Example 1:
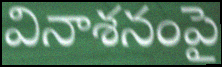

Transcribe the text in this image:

వినాశనంపై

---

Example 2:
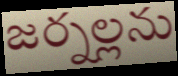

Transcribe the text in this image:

జర్నల్లను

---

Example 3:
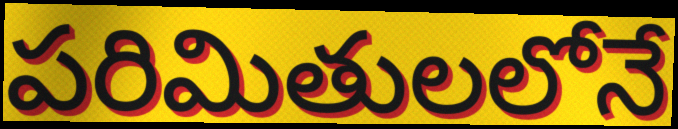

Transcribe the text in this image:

పరిమితులలోనే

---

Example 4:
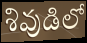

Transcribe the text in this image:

శివుడిలో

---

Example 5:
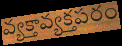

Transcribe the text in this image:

వ్యక్తావ్యక్తపరం